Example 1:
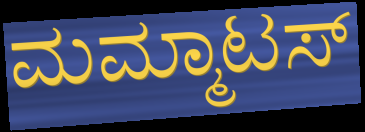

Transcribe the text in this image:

ಮಮ್ಮಾಟಸ್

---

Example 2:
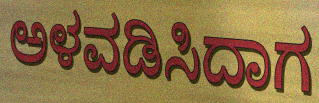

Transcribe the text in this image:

ಅಳವಡಿಸಿದಾಗ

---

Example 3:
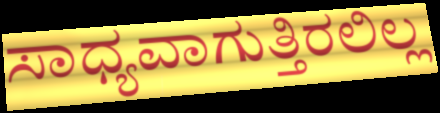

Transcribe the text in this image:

ಸಾಧ್ಯವಾಗುತ್ತಿರಲಿಲ್ಲ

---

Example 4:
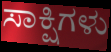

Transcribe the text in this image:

ಸಾಕ್ಷಿಗಳು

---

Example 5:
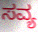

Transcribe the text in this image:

ಸವ್ಯ